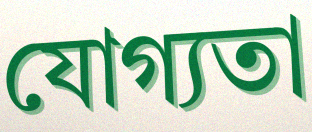
যোগ্যতা